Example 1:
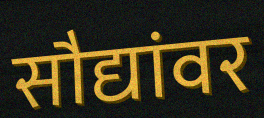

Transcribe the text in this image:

सौद्यांवर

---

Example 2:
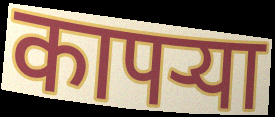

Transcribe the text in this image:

कापर्‍या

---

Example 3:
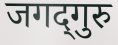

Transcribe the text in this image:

जगद्‍गुरु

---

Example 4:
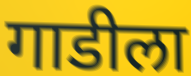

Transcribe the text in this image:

गाडीला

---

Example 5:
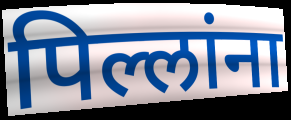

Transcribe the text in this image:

पिल्लांना